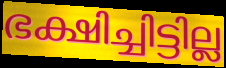
ഭക്ഷിച്ചിട്ടില്ല